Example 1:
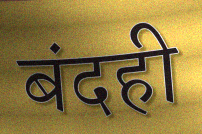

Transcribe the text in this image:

बंदही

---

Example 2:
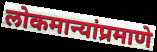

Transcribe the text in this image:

लोकमान्यांप्रमाणे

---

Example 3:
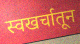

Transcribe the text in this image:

स्वखर्चातून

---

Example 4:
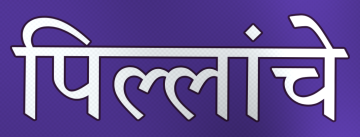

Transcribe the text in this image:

पिल्लांचे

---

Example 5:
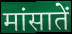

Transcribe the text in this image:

मांसातें